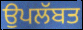
ਉਪਲੱਬਤ